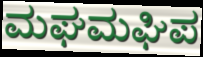
ಮಘಮಘಿಪ